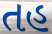
તહ